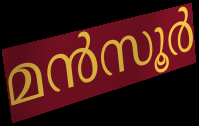
മൻസൂർ